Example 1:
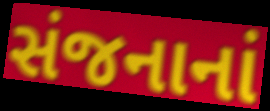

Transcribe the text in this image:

સંજનાનાં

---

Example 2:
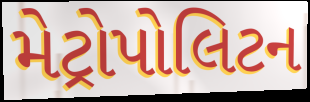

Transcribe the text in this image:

મેટ્રોપોલિટન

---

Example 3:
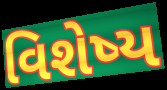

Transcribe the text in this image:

વિશેષ્ય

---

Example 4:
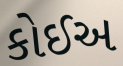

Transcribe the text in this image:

કોઈઅ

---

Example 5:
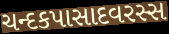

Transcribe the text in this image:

ચન્દકપાસાદવરસ્સ